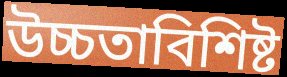
উচ্চতাবিশিষ্ট